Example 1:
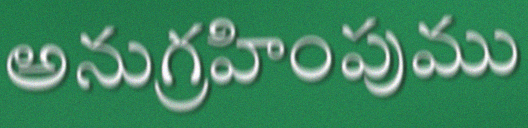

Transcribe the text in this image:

అనుగ్రహింపుము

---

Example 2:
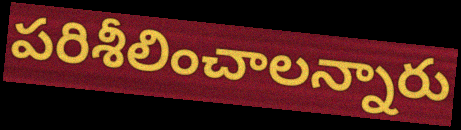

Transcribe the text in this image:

పరిశీలించాలన్నారు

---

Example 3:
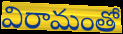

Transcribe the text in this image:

విరామంతో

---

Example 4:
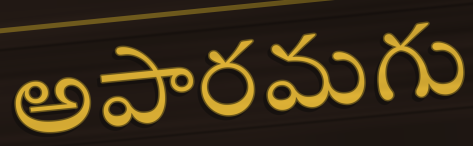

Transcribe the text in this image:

అపారమగు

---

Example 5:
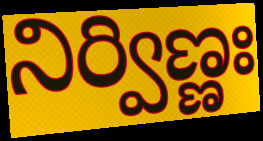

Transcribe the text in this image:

నిర్విణ్ణః